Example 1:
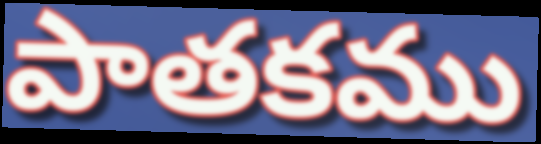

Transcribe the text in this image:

పాతకము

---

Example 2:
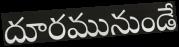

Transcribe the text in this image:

దూరమునుండే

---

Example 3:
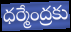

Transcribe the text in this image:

ధర్మేంద్రకు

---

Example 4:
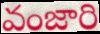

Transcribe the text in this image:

వంజారి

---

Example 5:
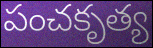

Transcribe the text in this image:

పంచకృత్య